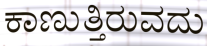
ಕಾಣುತ್ತಿರುವದು